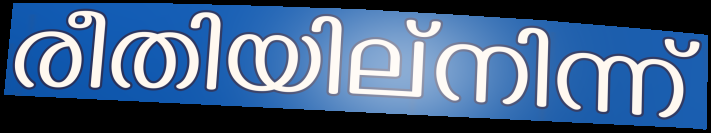
രീതിയില്നിന്ന്